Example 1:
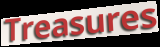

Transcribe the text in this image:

Treasures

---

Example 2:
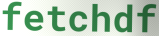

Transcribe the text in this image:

fetchdf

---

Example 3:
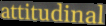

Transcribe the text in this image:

attitudinal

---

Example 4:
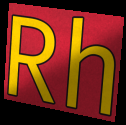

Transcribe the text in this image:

Rh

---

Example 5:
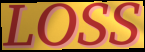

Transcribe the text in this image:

LOSS